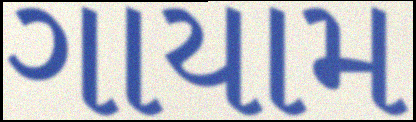
ગાયામ